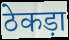
ठेकड़ा